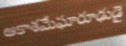
ఆకాశమేఘారూఢుడై